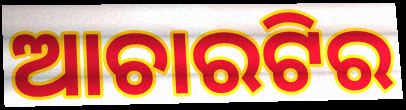
ଆଚାରଟିର